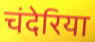
चंदेरिया